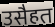
उसैहत